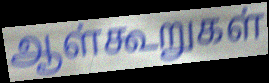
ஆள்கூறுகள்